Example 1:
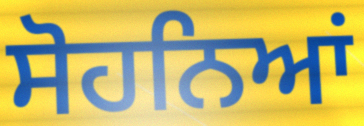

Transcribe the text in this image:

ਸੋਹਨਿਆਂ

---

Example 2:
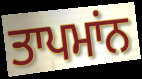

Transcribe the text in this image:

ਤਾਪਮਾਂਨ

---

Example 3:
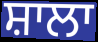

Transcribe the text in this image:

ਸ਼ਾਲਾ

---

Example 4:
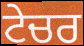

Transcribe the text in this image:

ਟੇਚਰ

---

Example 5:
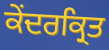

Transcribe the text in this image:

ਕੇਂਦਰਕ੍ਰਿਤ